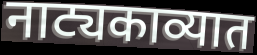
नाट्यकाव्यात